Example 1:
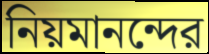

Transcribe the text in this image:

নিয়মানন্দের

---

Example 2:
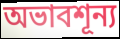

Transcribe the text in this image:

অভাবশূন্য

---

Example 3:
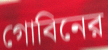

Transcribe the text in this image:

গোবিনের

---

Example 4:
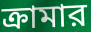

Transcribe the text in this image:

ক্রামার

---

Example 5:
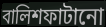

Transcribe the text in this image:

বালিশফাটানো